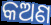
କଅଣ